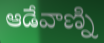
ఆడేవాణ్ని